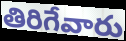
తిరిగేవారు